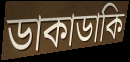
ডাকাডাকি